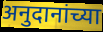
अनुदानांच्या